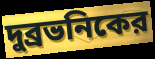
দুব্রভনিকের